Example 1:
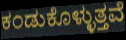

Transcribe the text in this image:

ಕಂಡುಕೊಳ್ಳುತ್ತವೆ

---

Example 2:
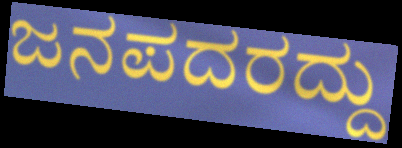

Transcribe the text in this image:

ಜನಪದರದ್ದು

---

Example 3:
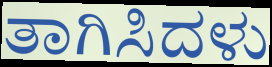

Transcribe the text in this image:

ತಾಗಿಸಿದಳು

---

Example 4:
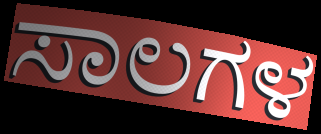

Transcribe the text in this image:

ಸಾಲಗಳ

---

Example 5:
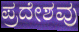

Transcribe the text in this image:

ಪ್ರದೇಶವು